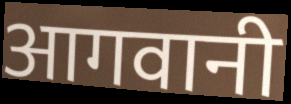
आगवानी